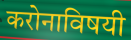
करोनाविषयी